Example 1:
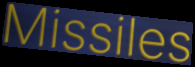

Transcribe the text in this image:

Missiles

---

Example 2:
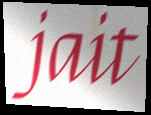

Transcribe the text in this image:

jait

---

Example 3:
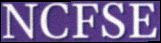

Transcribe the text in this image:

NCFSE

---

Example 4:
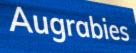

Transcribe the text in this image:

Augrabies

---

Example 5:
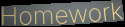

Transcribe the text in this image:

Homework